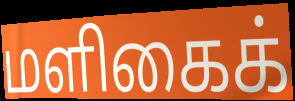
மளிகைக்